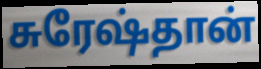
சுரேஷ்தான்